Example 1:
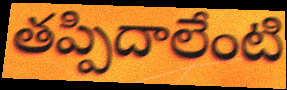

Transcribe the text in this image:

తప్పిదాలేంటి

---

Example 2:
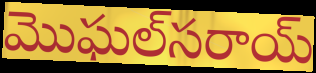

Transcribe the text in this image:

మొఘల్‌సరాయ్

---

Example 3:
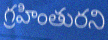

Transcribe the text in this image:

గ్రహింతురని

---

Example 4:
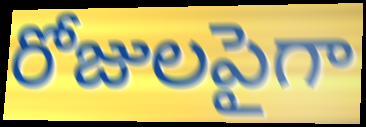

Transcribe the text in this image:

రోజులపైగా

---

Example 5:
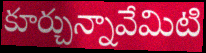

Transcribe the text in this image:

కూర్చున్నావేమిటి